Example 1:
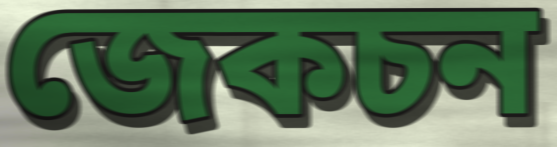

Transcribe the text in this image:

জেকচন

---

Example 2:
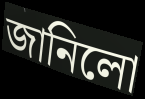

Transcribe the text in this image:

জানিলো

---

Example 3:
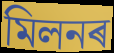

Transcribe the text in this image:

মিলনৰ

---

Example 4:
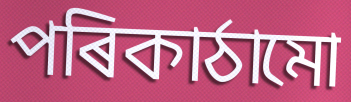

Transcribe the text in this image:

পৰিকাঠামো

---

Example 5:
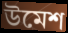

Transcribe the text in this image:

উমেশ